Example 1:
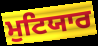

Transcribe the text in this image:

ਮੁਟਿਯਾਰ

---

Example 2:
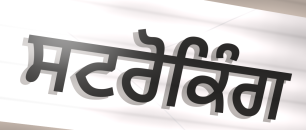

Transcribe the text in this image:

ਸਟਰੋਕਿੰਗ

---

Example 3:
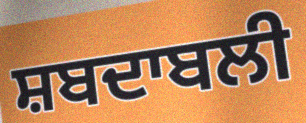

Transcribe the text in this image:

ਸ਼ਬਦਾਬਲੀ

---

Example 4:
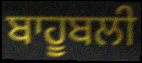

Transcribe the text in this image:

ਬਾਹੂਬਲੀ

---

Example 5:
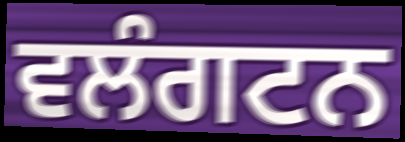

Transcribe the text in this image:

ਵਲੰਗਟਨ